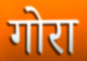
गोरा